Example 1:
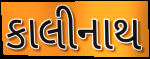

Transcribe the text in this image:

કાલીનાથ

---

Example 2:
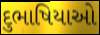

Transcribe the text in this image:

દુભાષિયાઓ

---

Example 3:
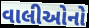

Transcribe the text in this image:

વાલીઓનો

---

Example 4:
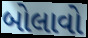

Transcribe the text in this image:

બોલાવો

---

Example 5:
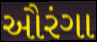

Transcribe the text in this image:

ઔરંગા